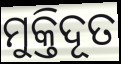
ମୁକ୍ତିଦୂତ